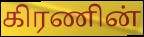
கிரணின்